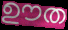
ഊത